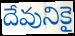
దేవునికై